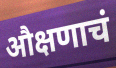
औक्षणाचं